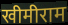
खीमीराम